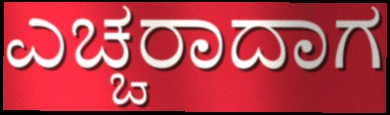
ಎಚ್ಚರಾದಾಗ